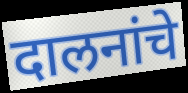
दालनांचे